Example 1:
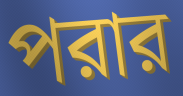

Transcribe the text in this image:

পরার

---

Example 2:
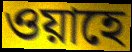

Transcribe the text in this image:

ওয়াহে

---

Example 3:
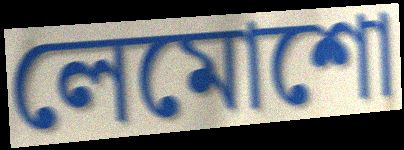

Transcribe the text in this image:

লেমোশো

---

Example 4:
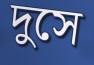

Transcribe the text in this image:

দুসে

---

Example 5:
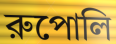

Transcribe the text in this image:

রুপোলি